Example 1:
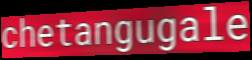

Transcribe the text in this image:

chetangugale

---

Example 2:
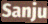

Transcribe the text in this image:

Sanju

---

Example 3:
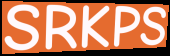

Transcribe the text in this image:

SRKPS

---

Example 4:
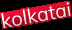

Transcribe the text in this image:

kolkatai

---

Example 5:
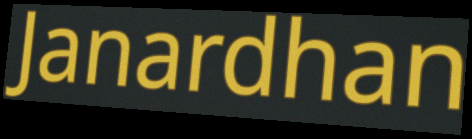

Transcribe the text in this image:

Janardhan